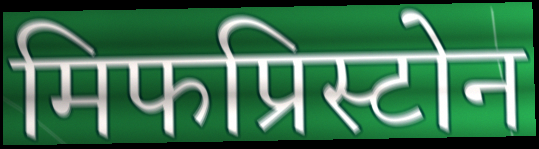
मिफप्रिस्टोन